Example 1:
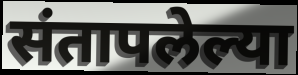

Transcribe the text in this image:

संतापलेल्या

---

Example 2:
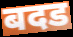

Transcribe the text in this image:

बदड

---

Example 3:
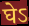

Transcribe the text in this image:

घेऽ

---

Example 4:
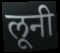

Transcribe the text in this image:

लूनी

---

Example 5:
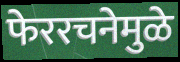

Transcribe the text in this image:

फेररचनेमुळे